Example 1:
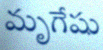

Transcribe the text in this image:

మృగేషు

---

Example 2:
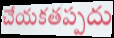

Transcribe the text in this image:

చేయకతప్పదు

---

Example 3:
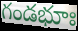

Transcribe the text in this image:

గండభూః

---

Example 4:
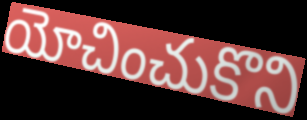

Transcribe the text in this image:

యోచించుకొని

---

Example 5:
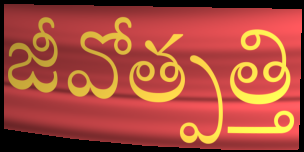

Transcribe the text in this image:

జీవోత్పత్తి